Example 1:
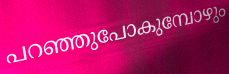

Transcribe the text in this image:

പറഞ്ഞുപോകുമ്പോഴും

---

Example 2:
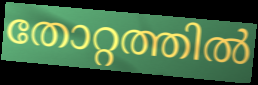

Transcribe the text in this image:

തോറ്റത്തിൽ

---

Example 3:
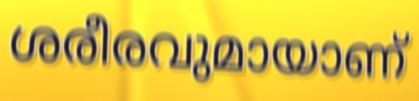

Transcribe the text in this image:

ശരീരവുമായാണ്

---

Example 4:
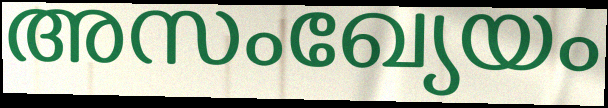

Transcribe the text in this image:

അസംഖ്യേയം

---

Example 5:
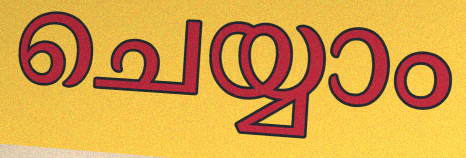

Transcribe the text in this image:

ചെയ്യാം